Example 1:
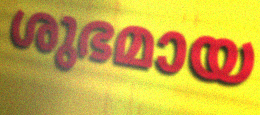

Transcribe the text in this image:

ശുഭമായ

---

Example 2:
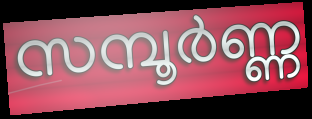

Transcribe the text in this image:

സമ്പൂർണ്ണ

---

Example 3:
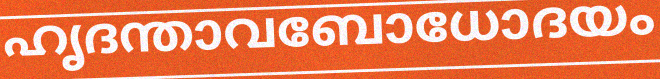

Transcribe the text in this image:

ഹൃദന്താവബോധോദയം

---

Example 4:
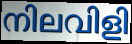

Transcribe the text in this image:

നിലവിളി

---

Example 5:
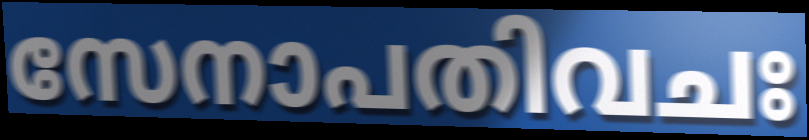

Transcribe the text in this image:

സേനാപതിവചഃ